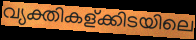
വ്യക്തികള്ക്കിടയിലെ